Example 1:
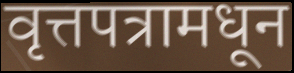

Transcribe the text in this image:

वृत्तपत्रामधून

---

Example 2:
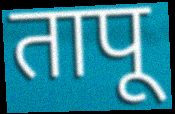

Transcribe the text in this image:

तापू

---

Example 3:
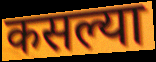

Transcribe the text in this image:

कसल्या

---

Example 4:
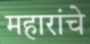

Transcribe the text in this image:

महारांचे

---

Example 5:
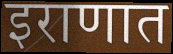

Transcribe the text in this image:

इराणात